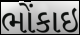
ભોંકાઇ